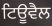
ਟਿਊਵੈਲ